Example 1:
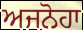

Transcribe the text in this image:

ਅਜਨੋਹਾ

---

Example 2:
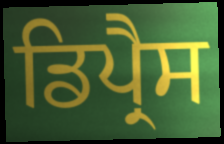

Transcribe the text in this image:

ਡਿਪ੍ਰੈਸ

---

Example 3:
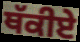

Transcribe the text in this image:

ਥੱਕੀਏ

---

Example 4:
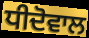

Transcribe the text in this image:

ਧੀਦੋਵਾਲ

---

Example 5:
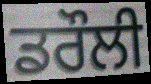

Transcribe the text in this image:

ਡਰੌਲੀ